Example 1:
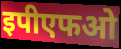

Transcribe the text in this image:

इपीएफओ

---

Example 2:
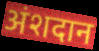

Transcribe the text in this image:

अंशदान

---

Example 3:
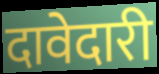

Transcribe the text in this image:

दावेदारी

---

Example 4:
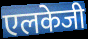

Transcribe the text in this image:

एलकेजी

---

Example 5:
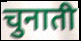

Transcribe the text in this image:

चुनाती